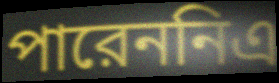
পারেননিএ